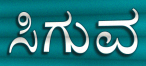
ಸಿಗುವ